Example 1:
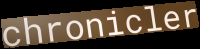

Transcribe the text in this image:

chronicler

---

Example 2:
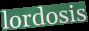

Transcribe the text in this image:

lordosis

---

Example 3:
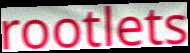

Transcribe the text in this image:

rootlets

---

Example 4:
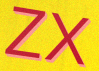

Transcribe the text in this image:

zx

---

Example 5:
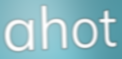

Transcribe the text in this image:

ahot